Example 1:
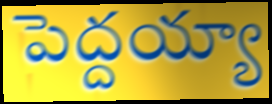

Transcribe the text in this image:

పెద్దయ్యా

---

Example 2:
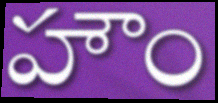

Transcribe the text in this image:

హౌం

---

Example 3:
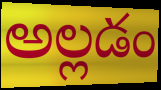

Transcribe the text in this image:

అల్లడం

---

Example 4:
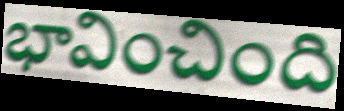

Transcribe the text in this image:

భావించింది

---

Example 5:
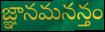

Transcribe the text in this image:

జ్ఞానమనన్తం